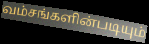
வம்சங்களின்படியும்